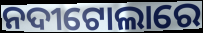
ନଦୀଟୋଲାରେ